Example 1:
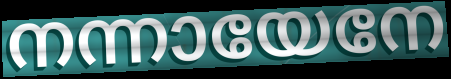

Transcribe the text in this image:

നന്നായേനേ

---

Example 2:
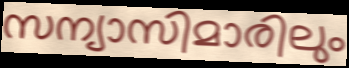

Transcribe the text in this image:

സന്യാസിമാരിലും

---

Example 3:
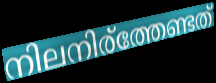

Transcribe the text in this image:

നിലനിര്ത്തേണ്ടത്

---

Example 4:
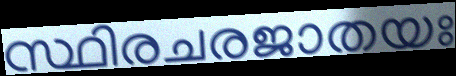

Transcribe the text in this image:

സ്ഥിരചരജാതയഃ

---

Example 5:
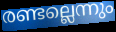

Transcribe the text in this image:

രണ്ടല്ലെന്നും